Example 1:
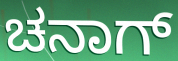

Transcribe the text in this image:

ಚನಾಗ್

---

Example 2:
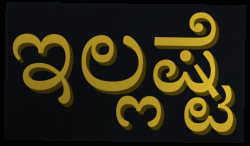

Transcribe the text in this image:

ಇಲ್ಲಷ್ಟೆ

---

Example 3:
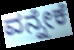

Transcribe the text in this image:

ವನ್ನೇಕೆ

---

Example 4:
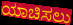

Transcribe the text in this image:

ಯಾಚಿಸಲು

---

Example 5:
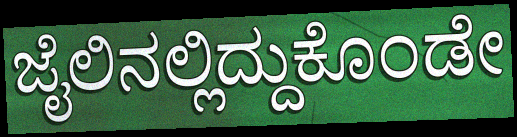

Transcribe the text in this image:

ಜೈಲಿನಲ್ಲಿದ್ದುಕೊಂಡೇ